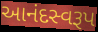
આનંદસ્વરૂપ